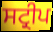
ਸਟ੍ਰੀਪ